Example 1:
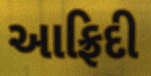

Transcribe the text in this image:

આફ્રિદી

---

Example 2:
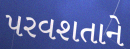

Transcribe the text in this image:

પરવશતાને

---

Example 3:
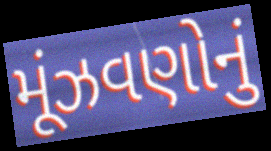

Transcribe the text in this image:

મૂંઝવણોનું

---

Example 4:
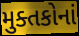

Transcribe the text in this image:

મુક્તકોનાં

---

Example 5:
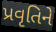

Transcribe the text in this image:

પ્રવૃતિને